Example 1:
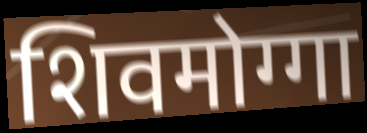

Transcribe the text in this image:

शिवमोग्गा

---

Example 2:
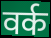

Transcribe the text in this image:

वर्क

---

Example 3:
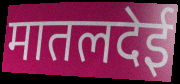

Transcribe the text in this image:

मातलदेई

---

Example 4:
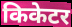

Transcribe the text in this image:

किकेटर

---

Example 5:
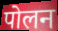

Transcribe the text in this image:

पोलन